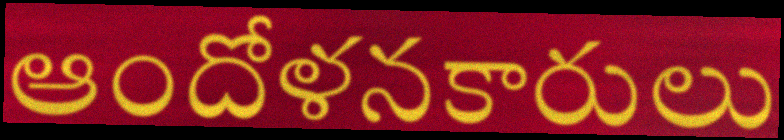
ఆందోళనకారులు